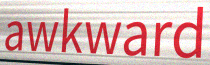
awkward